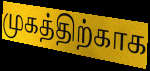
முகத்திற்காக